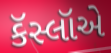
કૅસ્લૉએ